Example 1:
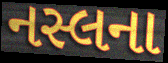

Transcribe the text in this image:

નસ્લના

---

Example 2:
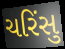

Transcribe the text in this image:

ચરિંસુ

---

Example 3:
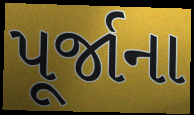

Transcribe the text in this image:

પૂર્જાના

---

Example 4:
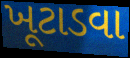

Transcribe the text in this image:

ખૂટાડવા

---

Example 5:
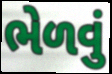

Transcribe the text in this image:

ભેળવું